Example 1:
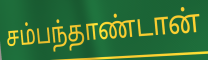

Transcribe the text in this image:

சம்பந்தாண்டான்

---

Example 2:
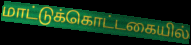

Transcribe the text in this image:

மாட்டுக்கொட்டகையில்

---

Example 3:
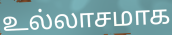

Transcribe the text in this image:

உல்லாசமாக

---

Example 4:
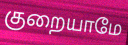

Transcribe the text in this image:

குறையாமே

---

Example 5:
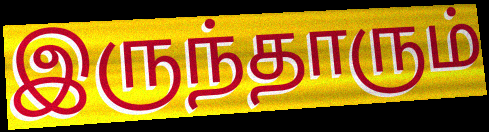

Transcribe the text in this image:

இருந்தாரும்